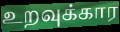
உறவுக்கார